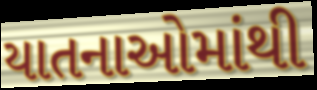
યાતનાઓમાંથી